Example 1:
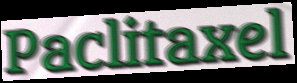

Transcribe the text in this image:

Paclitaxel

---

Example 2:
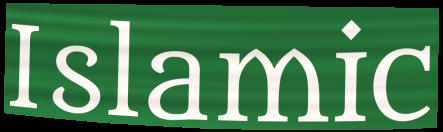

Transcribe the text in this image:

Islamic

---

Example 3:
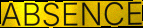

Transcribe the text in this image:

ABSENCE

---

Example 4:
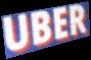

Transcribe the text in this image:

UBER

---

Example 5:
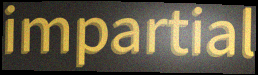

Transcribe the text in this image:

impartial